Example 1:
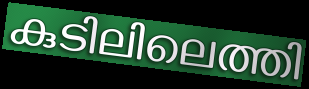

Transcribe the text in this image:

കുടിലിലെത്തി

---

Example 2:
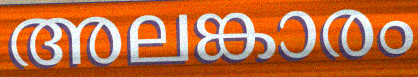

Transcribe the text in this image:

അലങ്കാരം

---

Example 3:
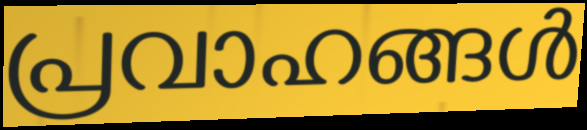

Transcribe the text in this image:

പ്രവാഹങ്ങൾ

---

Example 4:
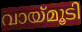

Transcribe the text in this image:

വായ്മൂടി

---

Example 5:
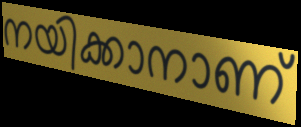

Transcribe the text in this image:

നയിക്കാനാണ്